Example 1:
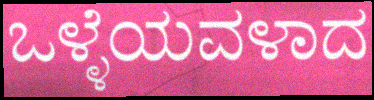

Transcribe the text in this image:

ಒಳ್ಳೆಯವಳಾದ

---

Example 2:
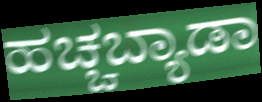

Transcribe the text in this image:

ಹಚ್ಚಬ್ಯಾಡಾ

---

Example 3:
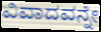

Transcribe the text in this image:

ವಿವಾದವನ್ನೇ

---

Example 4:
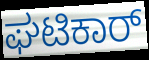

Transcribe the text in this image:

ಘಟಿಕಾರ್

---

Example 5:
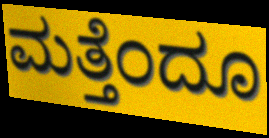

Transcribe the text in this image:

ಮತ್ತೆಂದೂ